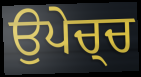
ਉਪੇਚ੍ਚ